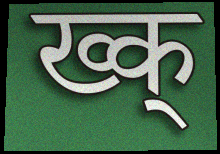
ख्क्